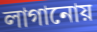
লাগানোয়